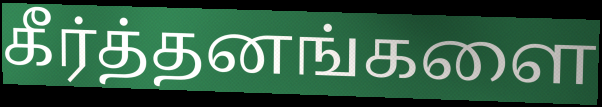
கீர்த்தனங்களை